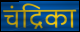
चंद्रिका